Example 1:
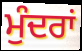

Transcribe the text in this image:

ਮੁੰਦਰਾਂ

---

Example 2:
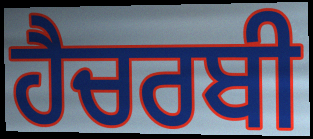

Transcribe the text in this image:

ਹੈਚਰਬੀ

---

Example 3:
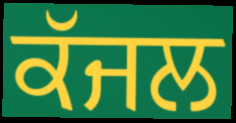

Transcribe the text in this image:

ਕੱਜਲ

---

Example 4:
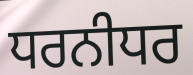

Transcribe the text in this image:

ਧਰਨੀਧਰ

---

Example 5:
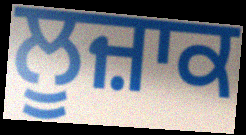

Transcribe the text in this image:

ਲੂਜ਼ਾਕ